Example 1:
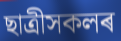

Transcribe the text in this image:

ছাত্ৰীসকলৰ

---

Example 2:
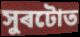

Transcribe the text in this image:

সুৰটোত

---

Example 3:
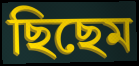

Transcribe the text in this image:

ছিছেম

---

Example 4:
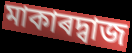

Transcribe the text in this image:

মাকাৰদ্বাজ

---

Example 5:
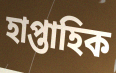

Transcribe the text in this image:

হাপ্তাহিক